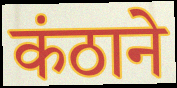
कंठाने